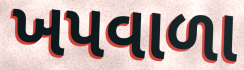
ખપવાળા